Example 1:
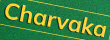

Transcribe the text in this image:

Charvaka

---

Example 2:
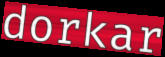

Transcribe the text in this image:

dorkar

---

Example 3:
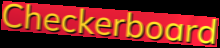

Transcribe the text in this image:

Checkerboard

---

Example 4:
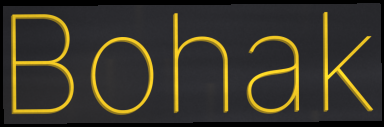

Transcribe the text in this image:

Bohak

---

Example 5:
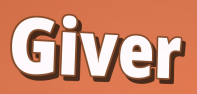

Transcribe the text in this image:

Giver